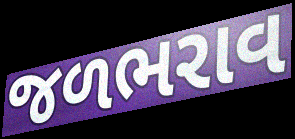
જળભરાવ